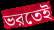
ভরতেই